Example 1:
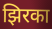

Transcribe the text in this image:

झिरका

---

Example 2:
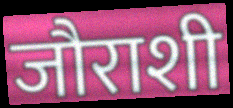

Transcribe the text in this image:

जौराशी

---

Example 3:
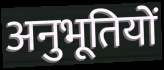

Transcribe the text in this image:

अनुभूतियों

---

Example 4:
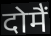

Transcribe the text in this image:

दोमैं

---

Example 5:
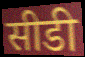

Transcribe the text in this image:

सीडी